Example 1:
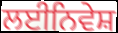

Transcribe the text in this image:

ਲਈਨਿਵੇਸ਼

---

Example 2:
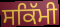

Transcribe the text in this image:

ਸਕਿੱਮੀ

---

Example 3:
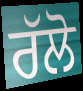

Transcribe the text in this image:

ਰੱਲੋ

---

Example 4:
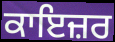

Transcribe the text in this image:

ਕਾਇਜ਼ਰ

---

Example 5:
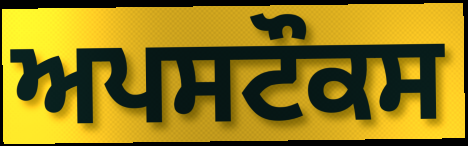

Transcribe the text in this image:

ਅਪਸਟੌਕਸ